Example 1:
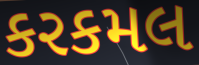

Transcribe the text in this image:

કરકમલ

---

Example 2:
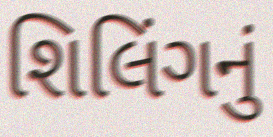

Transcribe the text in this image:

શિલિંગનું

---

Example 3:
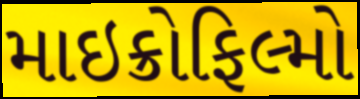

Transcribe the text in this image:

માઇક્રોફિલ્મો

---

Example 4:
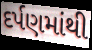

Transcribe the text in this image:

દર્પણમાંથી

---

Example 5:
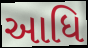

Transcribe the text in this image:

આધિ